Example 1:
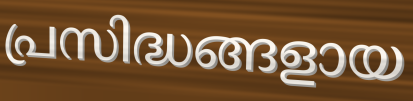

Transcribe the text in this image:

പ്രസിദ്ധങ്ങളായ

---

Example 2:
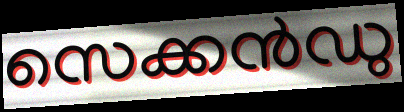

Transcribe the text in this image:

സെക്കൻഡു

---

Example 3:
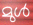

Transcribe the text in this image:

മുൾ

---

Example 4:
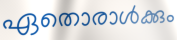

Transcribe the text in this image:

ഏതൊരാൾക്കും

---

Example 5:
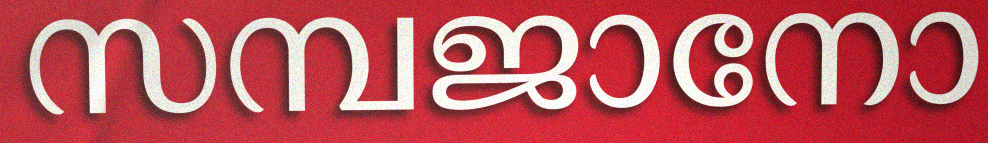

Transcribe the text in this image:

സമ്പജാനോ